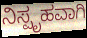
ನಿಸ್ಪೃಹವಾಗಿ